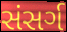
સંસર્ગ